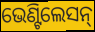
ଭେଣ୍ଟିଲେସନ୍